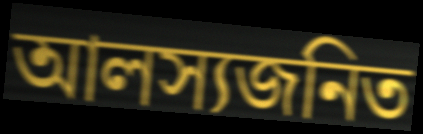
আলস্যজনিত